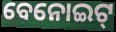
ବେନୋଇଟ୍